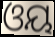
ଓୟ